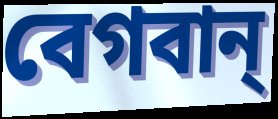
বেগবান্